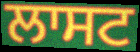
ਲਾਸਟ